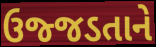
ઉજ્જડતાને